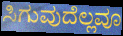
ಸಿಗುವುದೆಲ್ಲವೂ